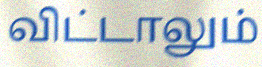
விட்டாலும்